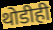
थोडीही